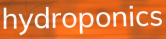
hydroponics